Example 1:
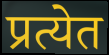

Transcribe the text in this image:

प्रत्येत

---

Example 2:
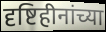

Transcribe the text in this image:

दृष्टिहीनांच्या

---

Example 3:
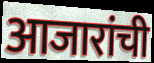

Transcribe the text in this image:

आजारांची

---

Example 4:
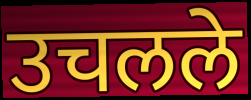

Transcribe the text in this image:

उचलले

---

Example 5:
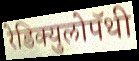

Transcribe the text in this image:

रेडिक्युलोपॅथी